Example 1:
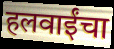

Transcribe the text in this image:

हलवाईंचा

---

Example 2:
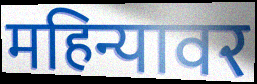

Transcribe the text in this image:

महिन्यावर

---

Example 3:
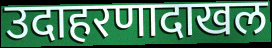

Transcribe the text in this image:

उदाहरणादाखल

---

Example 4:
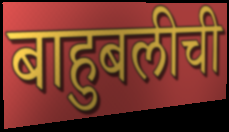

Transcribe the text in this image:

बाहुबलीची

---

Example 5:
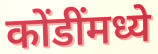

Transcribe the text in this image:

कोंडींमध्ये